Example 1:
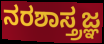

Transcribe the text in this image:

ನರಶಾಸ್ತ್ರಜ್ಞ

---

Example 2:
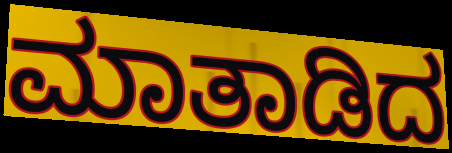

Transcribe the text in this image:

ಮಾತಾಡಿದ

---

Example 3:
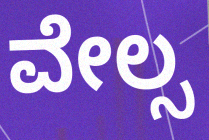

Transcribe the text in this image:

ವೇಲ್ಸ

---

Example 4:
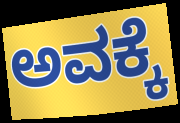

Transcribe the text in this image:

ಅವಕ್ಕೆ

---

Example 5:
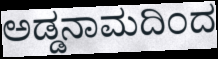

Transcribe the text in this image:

ಅಡ್ಡನಾಮದಿಂದ